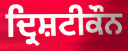
ਦ੍ਰਿਸ਼ਟੀਕੌਨ